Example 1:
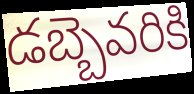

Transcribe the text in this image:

డబ్బెవరికి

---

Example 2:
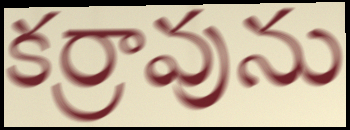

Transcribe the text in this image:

కర్రావును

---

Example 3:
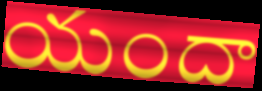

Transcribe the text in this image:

యందా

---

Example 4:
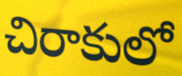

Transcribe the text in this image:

చిరాకులో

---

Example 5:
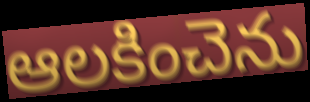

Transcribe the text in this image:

ఆలకించెను